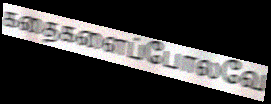
கதைகளைப்போலவே